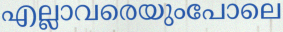
എല്ലാവരെയുംപോലെ